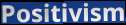
Positivism